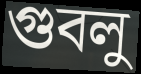
গুবলু